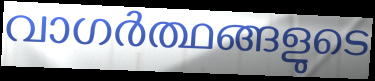
വാഗർത്ഥങ്ങളുടെ